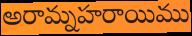
అరామ్నహరాయిము